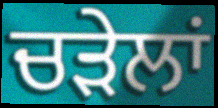
ਚੜੇਲਾਂ